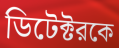
ডিটেক্টরকে